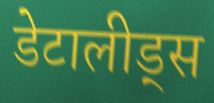
डेटालीड्स